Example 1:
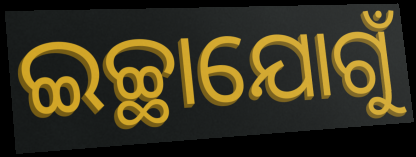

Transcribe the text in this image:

ଇଚ୍ଛାଯୋଗୁଁ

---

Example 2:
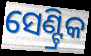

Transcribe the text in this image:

ସେଣ୍ଟ୍ରିକ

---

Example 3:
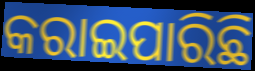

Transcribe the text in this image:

କରାଇପାରିଛି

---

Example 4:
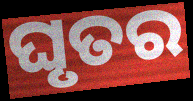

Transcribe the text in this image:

ଘୃତର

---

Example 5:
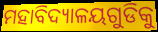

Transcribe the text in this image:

ମହାବିଦ୍ୟାଳୟଗୁଡିକୁ